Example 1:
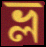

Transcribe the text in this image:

ভ্ল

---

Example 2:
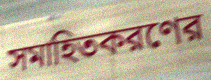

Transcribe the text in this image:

সমাহিতকরণের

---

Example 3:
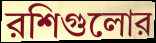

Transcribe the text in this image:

রশিগুলোর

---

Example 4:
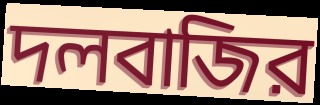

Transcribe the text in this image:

দলবাজির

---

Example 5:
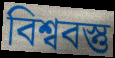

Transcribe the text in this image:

বিশ্ববস্তু